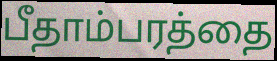
பீதாம்பரத்தை